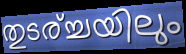
തുടര്ച്ചയിലും